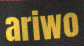
ariwo